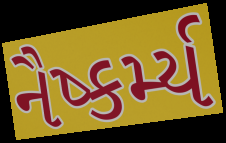
નૈષ્કર્મ્ય